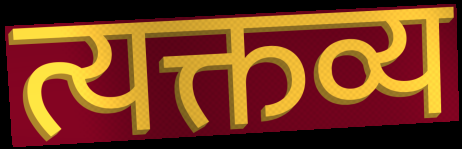
त्यक्तव्य